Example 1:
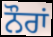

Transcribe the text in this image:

ਨੌਰਾਂ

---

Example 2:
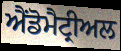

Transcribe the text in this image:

ਐਂਡੋਮੈਟ੍ਰੀਅਲ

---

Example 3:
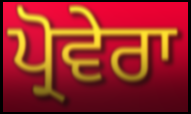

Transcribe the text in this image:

ਪ੍ਰੋਵੇਰਾ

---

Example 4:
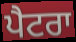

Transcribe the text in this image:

ਪੈਟਰਾ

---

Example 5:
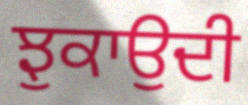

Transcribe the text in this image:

ਝੁਕਾਉਦੀ